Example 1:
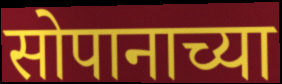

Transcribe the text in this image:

सोपानाच्या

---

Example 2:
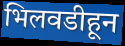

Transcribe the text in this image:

भिलवडीहून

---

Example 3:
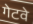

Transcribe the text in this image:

गेटवे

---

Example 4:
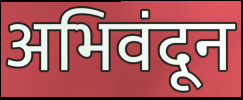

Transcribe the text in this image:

अभिवंदून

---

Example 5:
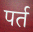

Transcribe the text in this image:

पर्त